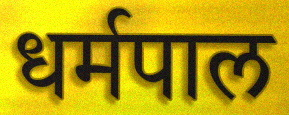
धर्मपाल